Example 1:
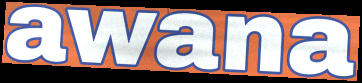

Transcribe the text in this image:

awana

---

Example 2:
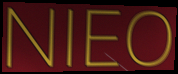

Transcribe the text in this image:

NIEO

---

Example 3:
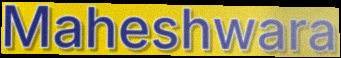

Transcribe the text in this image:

Maheshwara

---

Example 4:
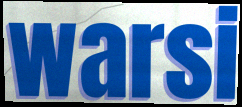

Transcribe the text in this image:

warsi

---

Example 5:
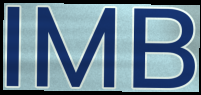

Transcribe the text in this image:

IMB